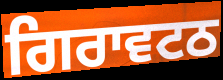
ਗਿਰਾਵਟਠ